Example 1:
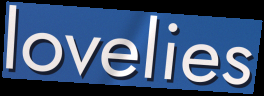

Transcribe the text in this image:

lovelies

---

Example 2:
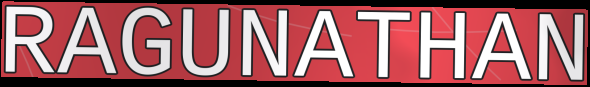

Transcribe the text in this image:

RAGUNATHAN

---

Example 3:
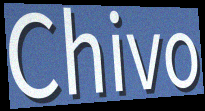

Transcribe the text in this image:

Chivo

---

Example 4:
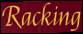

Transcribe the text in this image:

Racking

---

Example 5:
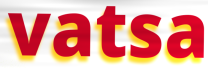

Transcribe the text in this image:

vatsa